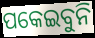
ପକେଇବୁନି